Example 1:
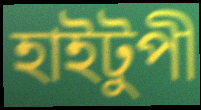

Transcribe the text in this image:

হাইটুপী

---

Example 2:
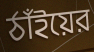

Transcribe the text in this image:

ঠাঁইয়ের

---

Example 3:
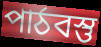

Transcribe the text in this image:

পাঠবস্তু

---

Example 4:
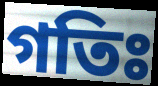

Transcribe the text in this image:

গতিঃ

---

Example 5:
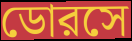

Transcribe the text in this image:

ডোরসে